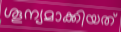
ശൂന്യമാക്കിയത്